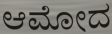
ಆಮೋದ